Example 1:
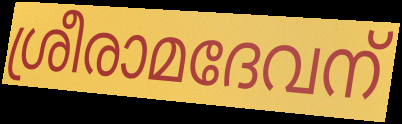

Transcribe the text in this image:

ശ്രീരാമദേവന്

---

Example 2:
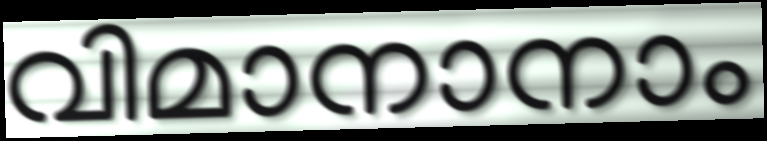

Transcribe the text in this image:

വിമാനാനാം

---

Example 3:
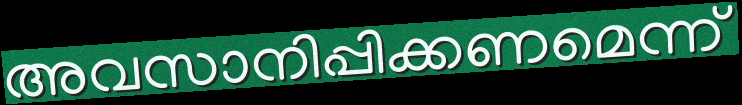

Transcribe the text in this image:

അവസാനിപ്പിക്കണമെന്ന്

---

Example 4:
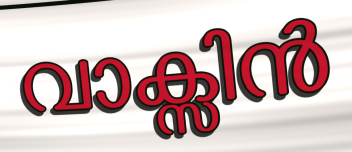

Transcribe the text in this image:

വാക്സിൻ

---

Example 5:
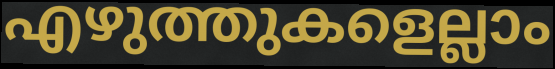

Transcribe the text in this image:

എഴുത്തുകളെല്ലാം